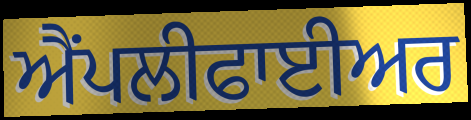
ਐੰਪਲੀਫਾਈਅਰ